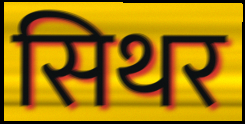
सिथर